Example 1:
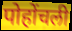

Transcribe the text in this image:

पोहोंचली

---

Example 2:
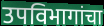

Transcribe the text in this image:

उपविभागांचा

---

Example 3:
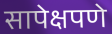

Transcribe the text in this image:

सापेक्षपणे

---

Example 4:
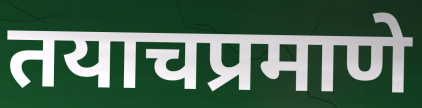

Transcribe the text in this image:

तयाचप्रमाणे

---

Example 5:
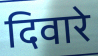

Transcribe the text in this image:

दिवारे